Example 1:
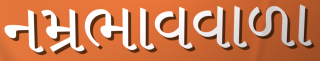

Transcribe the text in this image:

નમ્રભાવવાળા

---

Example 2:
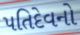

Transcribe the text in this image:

પતિદેવનો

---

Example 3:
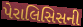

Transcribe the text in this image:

પેરાલિસિસની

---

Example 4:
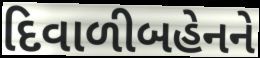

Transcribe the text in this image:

દિવાળીબહેનને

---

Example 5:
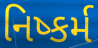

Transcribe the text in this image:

નિષ્કર્મ